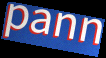
pann